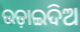
ଉଡ଼ାଇଦିଅ